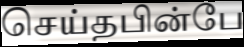
செய்தபின்பே